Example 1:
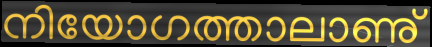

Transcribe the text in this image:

നിയോഗത്താലാണു്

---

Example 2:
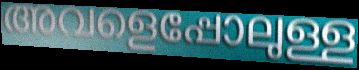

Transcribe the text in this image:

അവളെപ്പോലുള്ള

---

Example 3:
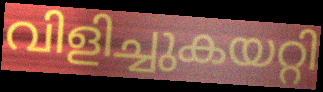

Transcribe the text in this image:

വിളിച്ചുകയറ്റി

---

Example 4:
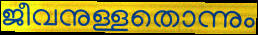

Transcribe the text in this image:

ജീവനുള്ളതൊന്നും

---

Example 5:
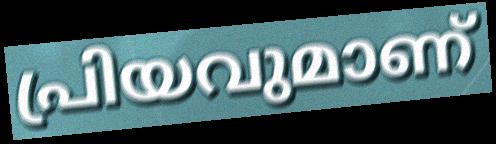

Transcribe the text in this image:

പ്രിയവുമാണ്